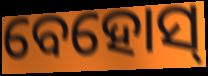
ବେହୋସ୍